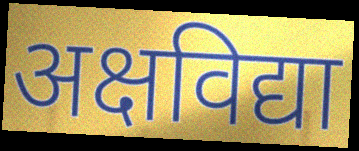
अक्षविद्या